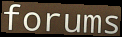
forums